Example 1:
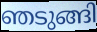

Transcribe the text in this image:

ഞടുങ്ങി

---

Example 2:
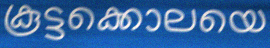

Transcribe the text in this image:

കൂട്ടക്കൊലയെ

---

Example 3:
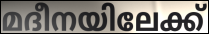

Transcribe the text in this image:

മദീനയിലേക്ക്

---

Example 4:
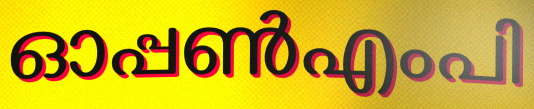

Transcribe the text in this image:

ഓപ്പൺഎംപി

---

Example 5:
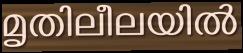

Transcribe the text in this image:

മൃതിലീലയിൽ